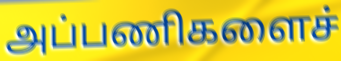
அப்பணிகளைச்